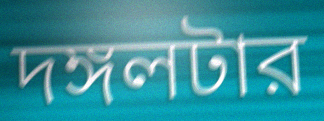
দঙ্গলটার